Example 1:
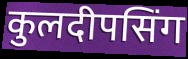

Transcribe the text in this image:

कुलदीपसिंग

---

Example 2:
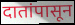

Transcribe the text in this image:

दातांपासून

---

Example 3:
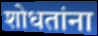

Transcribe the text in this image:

शोधतांना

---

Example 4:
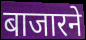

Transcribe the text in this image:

बाजारने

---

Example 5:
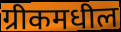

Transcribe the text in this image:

ग्रीकमधील